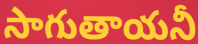
సాగుతాయనీ